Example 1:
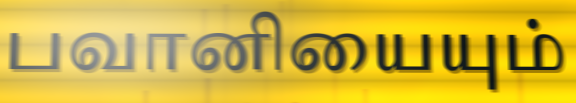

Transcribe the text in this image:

பவானியையும்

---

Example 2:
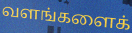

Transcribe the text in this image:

வளங்களைக்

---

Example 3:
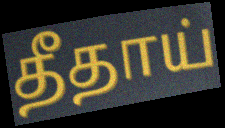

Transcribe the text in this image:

தீதாய்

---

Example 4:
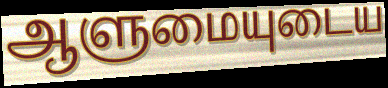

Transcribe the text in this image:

ஆளுமையுடைய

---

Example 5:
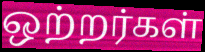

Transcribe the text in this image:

ஒற்றர்கள்